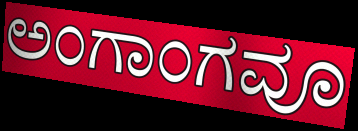
ಅಂಗಾಂಗವೂ